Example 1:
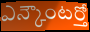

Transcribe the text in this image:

ఎన్కౌంటర్తో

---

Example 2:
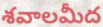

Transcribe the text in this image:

శవాలమీద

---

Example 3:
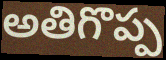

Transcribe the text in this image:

అతిగొప్ప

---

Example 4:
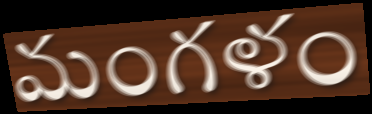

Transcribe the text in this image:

మంగళం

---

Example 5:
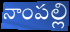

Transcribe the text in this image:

నాంపల్లి